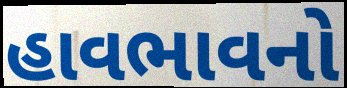
હાવભાવનો